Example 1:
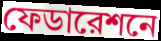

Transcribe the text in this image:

ফেডারেশনে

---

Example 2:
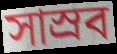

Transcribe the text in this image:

সাস্রব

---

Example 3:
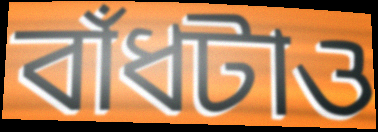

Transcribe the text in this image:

বাঁধটাও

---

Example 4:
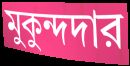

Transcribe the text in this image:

মুকুন্দদার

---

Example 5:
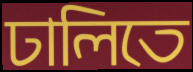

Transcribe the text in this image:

ঢালিতে